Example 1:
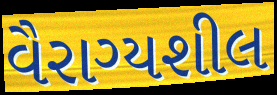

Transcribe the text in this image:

વૈરાગ્યશીલ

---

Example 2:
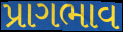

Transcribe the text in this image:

પ્રાગભાવ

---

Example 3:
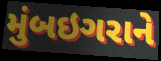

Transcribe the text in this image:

મુંબઇગરાને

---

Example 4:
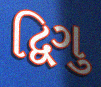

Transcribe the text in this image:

દ્વિગુ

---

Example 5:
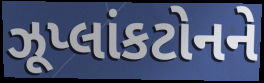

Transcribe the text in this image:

ઝૂપ્લાંકટોનને